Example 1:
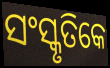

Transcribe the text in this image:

ସଂସ୍କୃତିକେ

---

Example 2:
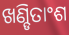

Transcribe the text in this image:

ଖଣ୍ଡିତାଂଶ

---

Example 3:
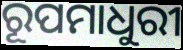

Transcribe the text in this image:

ରୂପମାଧୁରୀ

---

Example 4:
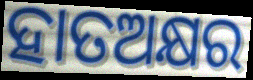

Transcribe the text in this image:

ହାତଅକ୍ଷର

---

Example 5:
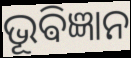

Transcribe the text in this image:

ଭୂଵିଜ୍ଞାନ